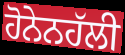
ਹੋਨੇਨਹੱਲੀ